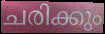
ചരിക്കും